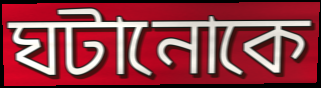
ঘটানোকে